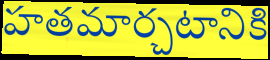
హతమార్చటానికి